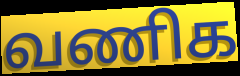
வணிக